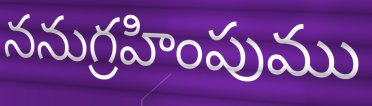
ననుగ్రహింపుము